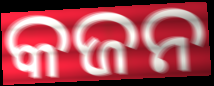
କଜନ